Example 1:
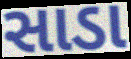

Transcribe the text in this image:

સાડા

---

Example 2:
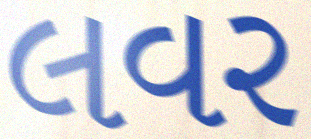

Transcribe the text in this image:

લવર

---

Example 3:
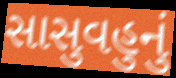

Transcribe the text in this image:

સાસુવહુનું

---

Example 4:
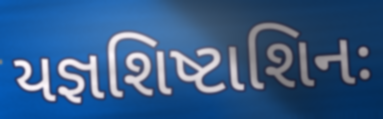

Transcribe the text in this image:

યજ્ઞશિષ્ટાશિનઃ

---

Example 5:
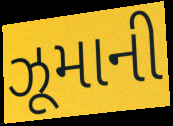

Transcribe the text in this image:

ઝૂમાની